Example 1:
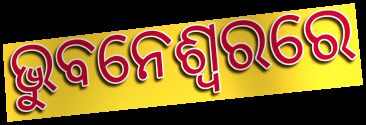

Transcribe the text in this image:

ଭୁବନେଶ୍ଵରରେ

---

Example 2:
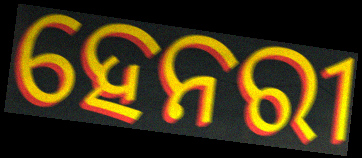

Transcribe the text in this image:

ହେନରୀ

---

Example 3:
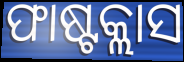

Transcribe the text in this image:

ଫାଷ୍ଟକ୍ଲାସ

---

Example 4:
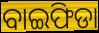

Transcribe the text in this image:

ବାଇଫିଡା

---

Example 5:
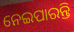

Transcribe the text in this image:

ନେଇପାରନ୍ତି